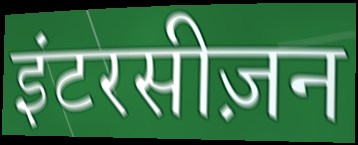
इंटरसीज़न